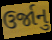
ઉર્જાનુ